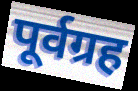
पूर्वग्रह